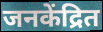
जनकेंद्रित